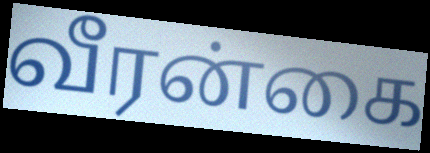
வீரன்கை